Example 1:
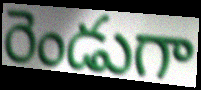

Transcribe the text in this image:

రెండుగా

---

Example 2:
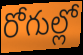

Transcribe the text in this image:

రోగుల్లో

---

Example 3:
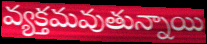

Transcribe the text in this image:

వ్యక్తమవుతున్నాయి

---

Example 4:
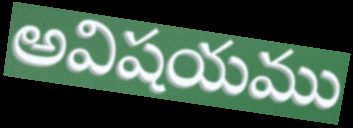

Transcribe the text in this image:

అవిషయము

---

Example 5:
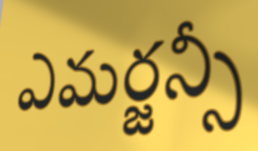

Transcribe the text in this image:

ఎమర్జన్సీ